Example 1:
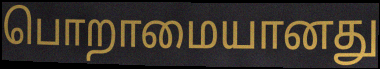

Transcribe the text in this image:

பொறாமையானது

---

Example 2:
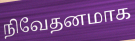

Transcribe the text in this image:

நிவேதனமாக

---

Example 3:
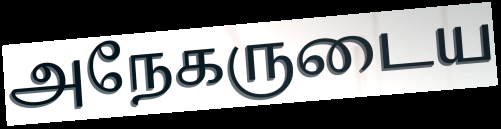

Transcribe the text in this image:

அநேகருடைய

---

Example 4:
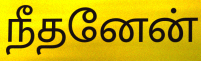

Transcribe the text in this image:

நீதனேன்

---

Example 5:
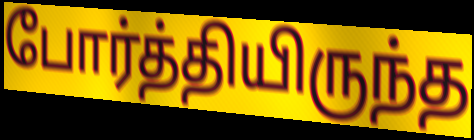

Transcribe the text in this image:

போர்த்தியிருந்த